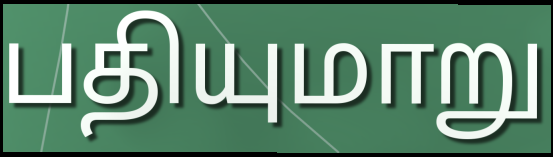
பதியுமாறு